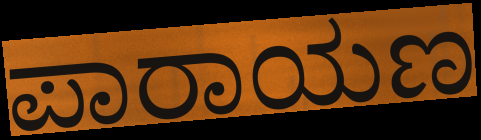
ಪಾರಾಯಣ